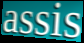
assis